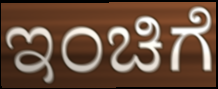
ಇಂಚಿಗೆ